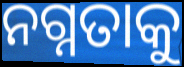
ନଗ୍ନତାକୁ